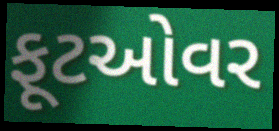
ફૂટઓવર